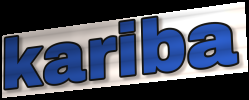
kariba